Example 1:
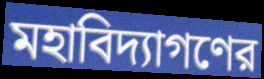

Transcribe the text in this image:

মহাবিদ্যাগণের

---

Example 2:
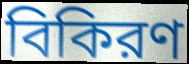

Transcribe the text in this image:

বিকিরণ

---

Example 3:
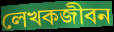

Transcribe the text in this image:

লেখকজীবন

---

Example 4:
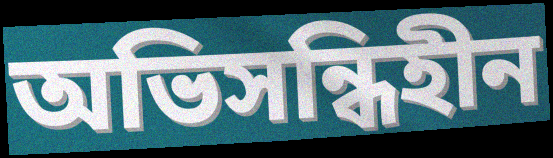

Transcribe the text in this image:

অভিসন্ধিহীন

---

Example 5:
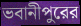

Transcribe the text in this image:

ভবানীপুরের